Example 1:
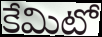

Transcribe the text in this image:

కేమిటో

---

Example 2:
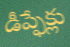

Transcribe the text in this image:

డీప్ఫేక్లు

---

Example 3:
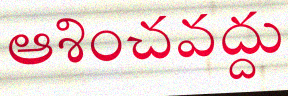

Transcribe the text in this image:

ఆశించవద్దు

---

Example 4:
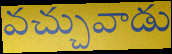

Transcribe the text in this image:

వచ్చువాడు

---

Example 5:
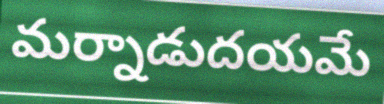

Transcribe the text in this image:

మర్నాడుదయమే